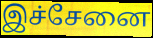
இச்சேனை